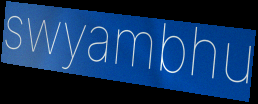
swyambhu